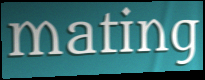
mating